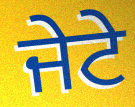
ਜੇਟੇ